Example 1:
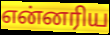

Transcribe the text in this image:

என்னரிய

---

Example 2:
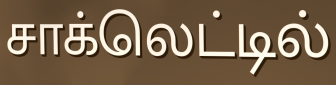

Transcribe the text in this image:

சாக்லெட்டில்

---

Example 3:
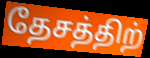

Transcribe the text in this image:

தேசத்திற்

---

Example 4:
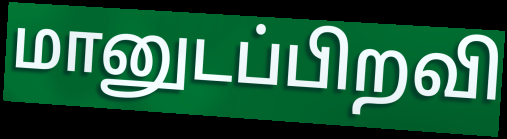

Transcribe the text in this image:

மானுடப்பிறவி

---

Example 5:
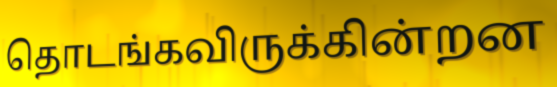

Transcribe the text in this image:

தொடங்கவிருக்கின்றன